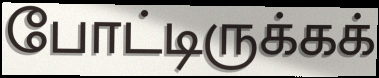
போட்டிருக்கக்